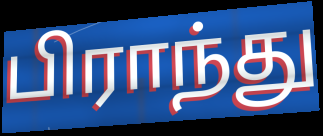
பிராந்து